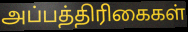
அப்பத்திரிகைகள்